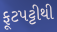
ફૂટપટ્ટીથી